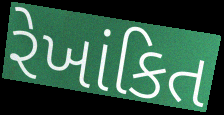
રેખાંકિત